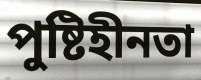
পুষ্টিহীনতা